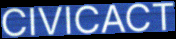
CIVICACT